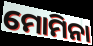
ମୋମିନା